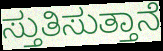
ಸ್ತುತಿಸುತ್ತಾನೆ